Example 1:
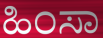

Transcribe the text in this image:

ಹಿಂಸಾ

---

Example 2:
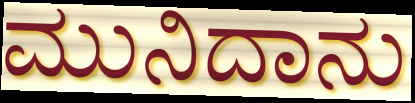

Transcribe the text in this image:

ಮುನಿದಾನು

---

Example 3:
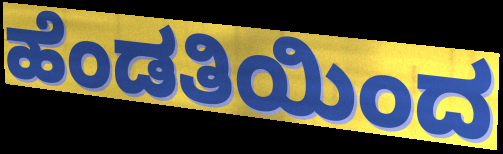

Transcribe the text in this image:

ಹೆಂಡತಿಯಿಂದ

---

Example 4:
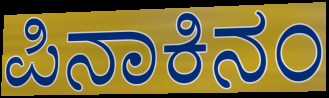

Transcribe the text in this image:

ಪಿನಾಕಿನಂ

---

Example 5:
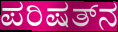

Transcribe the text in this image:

ಪರಿಷತ್‌ನ